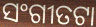
ସଂଗୀତଟା